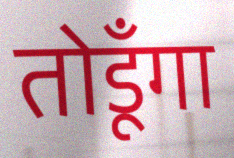
तोडूँगा